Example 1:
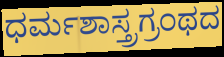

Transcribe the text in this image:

ಧರ್ಮಶಾಸ್ತ್ರಗ್ರಂಥದ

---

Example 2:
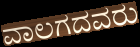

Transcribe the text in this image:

ವಾಲಗದವರು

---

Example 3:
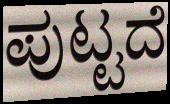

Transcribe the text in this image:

ಪುಟ್ಟದೆ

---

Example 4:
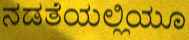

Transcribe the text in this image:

ನಡತೆಯಲ್ಲಿಯೂ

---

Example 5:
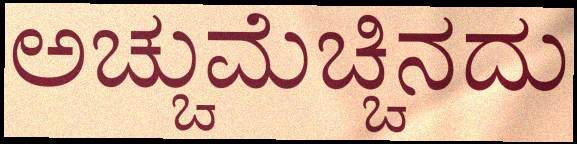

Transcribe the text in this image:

ಅಚ್ಚುಮೆಚ್ಚಿನದು